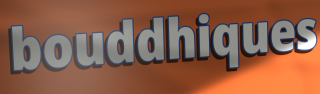
bouddhiques